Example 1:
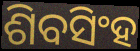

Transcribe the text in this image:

ଶିବସିଂହ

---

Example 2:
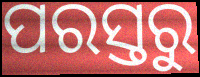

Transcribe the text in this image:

ପରସ୍ତରୁ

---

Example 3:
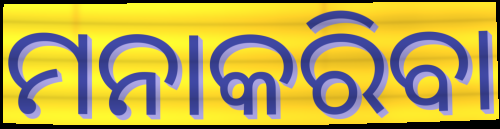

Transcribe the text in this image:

ମନାକରିବା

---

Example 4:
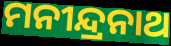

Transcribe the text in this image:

ମନୀନ୍ଦ୍ରନାଥ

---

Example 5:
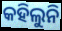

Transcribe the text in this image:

କହିଲୁନି